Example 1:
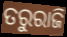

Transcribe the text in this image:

ତରୁରାଜି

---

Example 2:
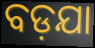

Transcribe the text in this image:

ବଡ଼ଯା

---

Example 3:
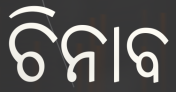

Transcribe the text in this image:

ଚିନାବ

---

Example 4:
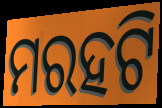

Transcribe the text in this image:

ମରହଟି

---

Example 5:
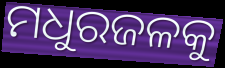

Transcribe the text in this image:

ମଧୁରଜଳକୁ